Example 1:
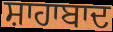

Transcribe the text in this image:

ਸ਼ਾਹਾਬਾਦ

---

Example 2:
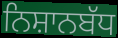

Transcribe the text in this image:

ਨਿਸ਼ਾਨਬੱਧ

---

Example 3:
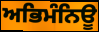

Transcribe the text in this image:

ਅਭਿਮੰਨਿਊ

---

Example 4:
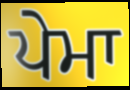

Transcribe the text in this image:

ਪੇਮਾ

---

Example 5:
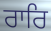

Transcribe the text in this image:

ਰਾਰਿ